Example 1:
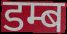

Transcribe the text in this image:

डम्ब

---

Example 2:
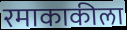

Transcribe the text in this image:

रमाकाकीला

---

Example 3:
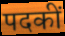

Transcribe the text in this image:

पदकीं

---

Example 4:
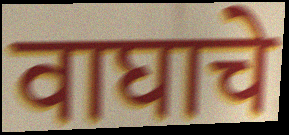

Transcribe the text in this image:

वाघाचे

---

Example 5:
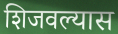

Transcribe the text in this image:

शिजवल्यास